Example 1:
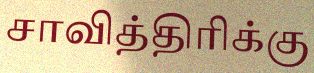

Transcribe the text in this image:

சாவித்திரிக்கு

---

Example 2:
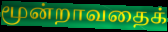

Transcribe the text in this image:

மூன்றாவதைக்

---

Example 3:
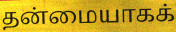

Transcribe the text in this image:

தன்மையாகக்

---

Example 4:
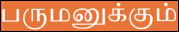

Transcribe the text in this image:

பருமனுக்கும்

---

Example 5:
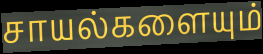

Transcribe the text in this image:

சாயல்களையும்